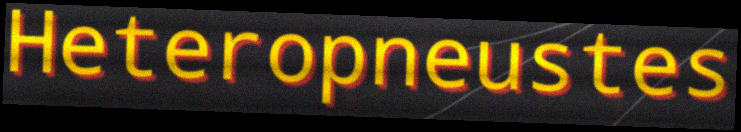
Heteropneustes